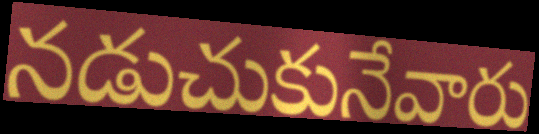
నడుచుకునేవారు